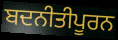
ਬਦਨੀਤੀਪੂਰਨ